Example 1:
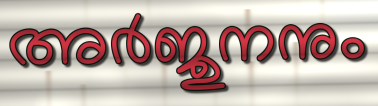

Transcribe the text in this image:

അർജുനനും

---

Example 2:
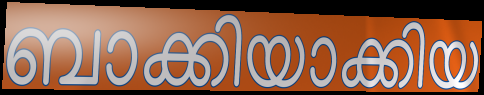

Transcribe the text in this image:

ബാക്കിയാക്കിയ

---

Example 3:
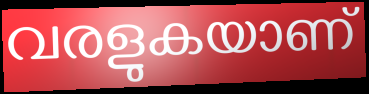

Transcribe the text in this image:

വരളുകയാണ്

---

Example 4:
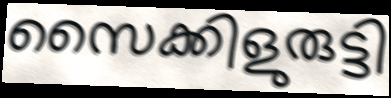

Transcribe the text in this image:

സൈക്കിളുരുട്ടി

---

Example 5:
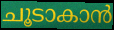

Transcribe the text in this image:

ചൂടാകാൻ